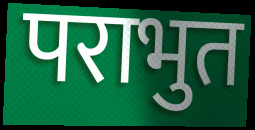
पराभुत